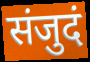
संजुदं